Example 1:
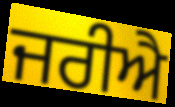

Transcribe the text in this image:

ਜਰੀਐ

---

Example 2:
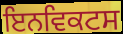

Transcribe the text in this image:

ਇਨਵਿਕਟਸ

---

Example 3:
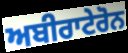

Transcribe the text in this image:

ਅਬੀਰਾਟੇਰੋਨ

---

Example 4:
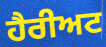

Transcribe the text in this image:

ਹੈਰੀਅਟ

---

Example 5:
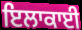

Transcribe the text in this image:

ਇਲਾਕਾਈ